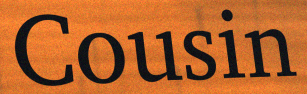
Cousin